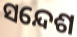
ସନ୍ଦେଶ